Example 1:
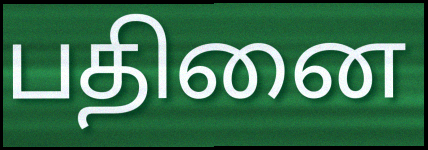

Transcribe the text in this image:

பதினை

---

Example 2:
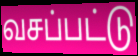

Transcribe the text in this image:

வசப்பட்டு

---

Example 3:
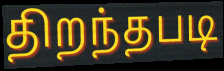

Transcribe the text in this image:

திறந்தபடி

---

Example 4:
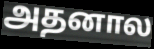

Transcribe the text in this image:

அதனால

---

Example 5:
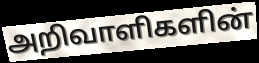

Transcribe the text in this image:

அறிவாளிகளின்